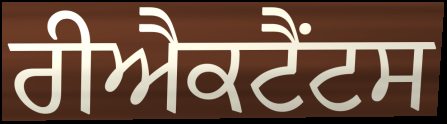
ਰੀਐਕਟੈਂਟਸ